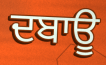
ਦਬਾਊ